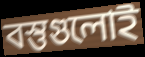
বস্তুগুলোই